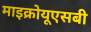
माइक्रोयूएसबी